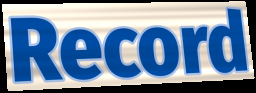
Record